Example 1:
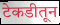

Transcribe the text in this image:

टेकडीतून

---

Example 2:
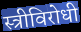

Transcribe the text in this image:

स्त्रीविरोधी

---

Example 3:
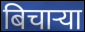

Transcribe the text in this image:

बिचाऱ्या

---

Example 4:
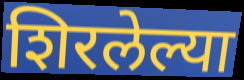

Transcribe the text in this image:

शिरलेल्या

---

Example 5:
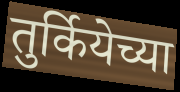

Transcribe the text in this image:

तुर्कियेच्या